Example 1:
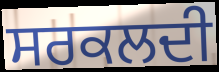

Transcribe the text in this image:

ਸਰਕਲਦੀ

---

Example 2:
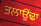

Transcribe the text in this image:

ਤਲਾਉਂਢਾ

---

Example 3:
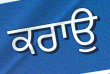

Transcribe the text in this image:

ਕਰਾਉ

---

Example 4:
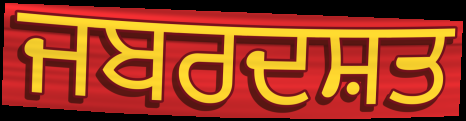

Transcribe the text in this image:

ਜਬਰਦਸ਼ਤ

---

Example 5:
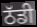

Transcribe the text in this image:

ਠੱਡੀ